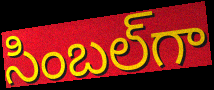
సింబల్‌గా